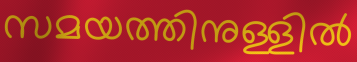
സമയത്തിനുള്ളിൽ